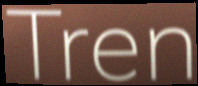
Tren